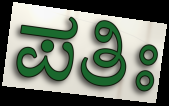
ಪತಿಃ